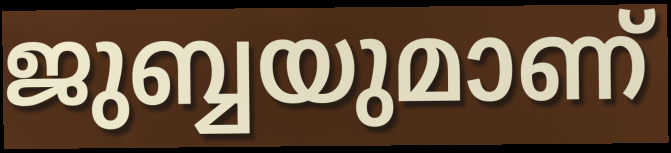
ജുബ്ബയുമാണ്